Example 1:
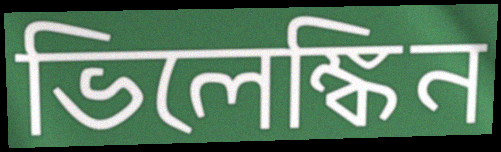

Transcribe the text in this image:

ভিলেঙ্কিন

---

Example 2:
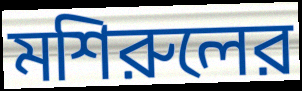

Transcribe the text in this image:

মশিরুলের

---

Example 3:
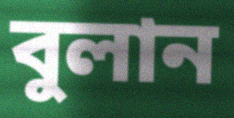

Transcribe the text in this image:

বুলান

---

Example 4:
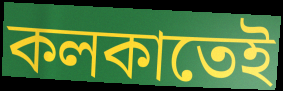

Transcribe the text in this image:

কলকাতেই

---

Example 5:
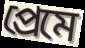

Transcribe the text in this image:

প্রেমে